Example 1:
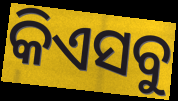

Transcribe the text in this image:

କିଏସବୁ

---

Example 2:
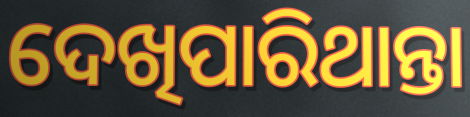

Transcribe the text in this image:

ଦେଖିପାରିଥାନ୍ତା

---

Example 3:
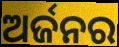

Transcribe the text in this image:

ଅର୍ଜନର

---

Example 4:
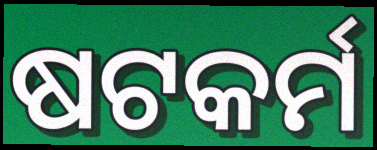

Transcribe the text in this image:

ଷଟକର୍ମ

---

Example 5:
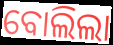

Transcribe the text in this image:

ବୋଲିଲା